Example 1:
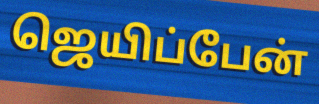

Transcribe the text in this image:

ஜெயிப்பேன்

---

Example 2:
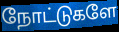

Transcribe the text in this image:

நோட்டுகளே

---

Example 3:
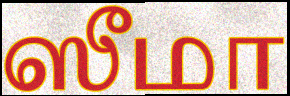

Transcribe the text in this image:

ஸீமா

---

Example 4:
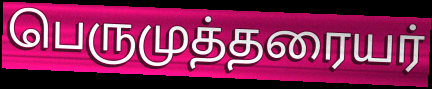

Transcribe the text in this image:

பெருமுத்தரையர்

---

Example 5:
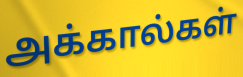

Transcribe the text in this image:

அக்கால்கள்